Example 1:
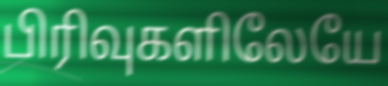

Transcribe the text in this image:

பிரிவுகளிலேயே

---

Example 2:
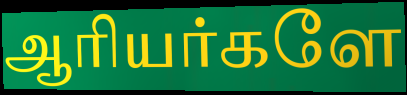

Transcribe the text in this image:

ஆரியர்களே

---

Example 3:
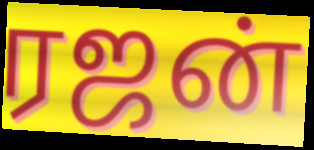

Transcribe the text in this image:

ரஜன்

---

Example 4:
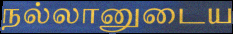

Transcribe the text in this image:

நல்லானுடைய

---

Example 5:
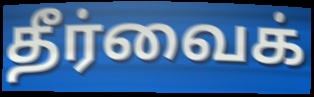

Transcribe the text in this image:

தீர்வைக்